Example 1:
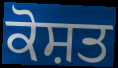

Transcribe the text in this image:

ਕੋਸ਼ਤ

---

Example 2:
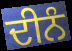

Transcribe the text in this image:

ਦੀਨੰ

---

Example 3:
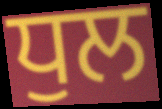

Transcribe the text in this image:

ਧੁਲ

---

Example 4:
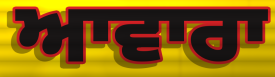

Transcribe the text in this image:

ਆਵਾਰਾ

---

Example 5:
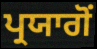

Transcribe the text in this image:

ਪ੍ਰਯਾਗੋਂ